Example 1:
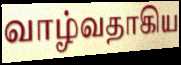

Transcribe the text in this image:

வாழ்வதாகிய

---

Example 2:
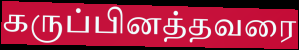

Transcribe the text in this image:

கருப்பினத்தவரை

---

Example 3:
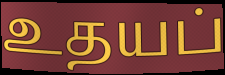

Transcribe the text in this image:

உதயப்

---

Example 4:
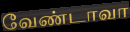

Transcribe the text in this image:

வேண்டாவா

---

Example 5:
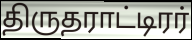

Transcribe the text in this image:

திருதராட்டிரர்